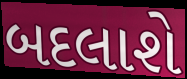
બદલાશે